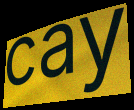
cay